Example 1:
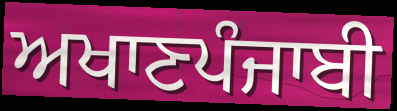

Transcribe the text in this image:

ਅਖਾਣਪੰਜਾਬੀ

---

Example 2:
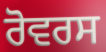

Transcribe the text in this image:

ਰੋਵਰਸ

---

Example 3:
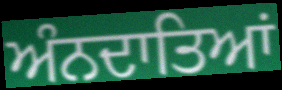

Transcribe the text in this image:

ਅੰਨਦਾਤਿਆਂ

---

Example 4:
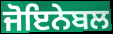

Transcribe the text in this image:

ਜੋਇਨੇਬਲ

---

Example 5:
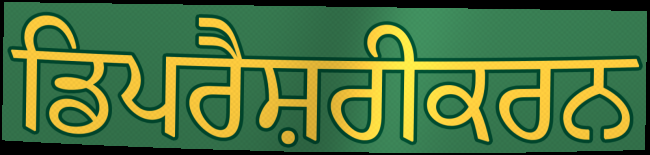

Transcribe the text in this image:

ਡਿਪਰੈਸ਼ਰੀਕਰਨ